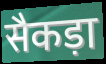
सैकड़ा